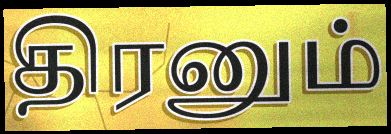
திரனும்